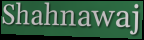
Shahnawaj